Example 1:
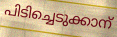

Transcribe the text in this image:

പിടിച്ചെടുക്കാന്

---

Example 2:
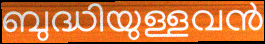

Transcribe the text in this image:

ബുദ്ധിയുള്ളവൻ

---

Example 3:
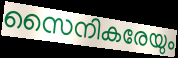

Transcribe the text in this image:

സൈനികരേയും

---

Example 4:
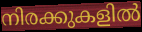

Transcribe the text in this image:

നിരക്കുകളിൽ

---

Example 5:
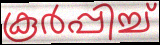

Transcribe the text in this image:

കൂർപ്പിച്ച്